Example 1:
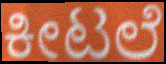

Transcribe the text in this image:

ಕೀಟಲೆ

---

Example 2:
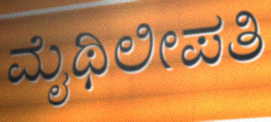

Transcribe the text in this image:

ಮೈಥಿಲೀಪತಿ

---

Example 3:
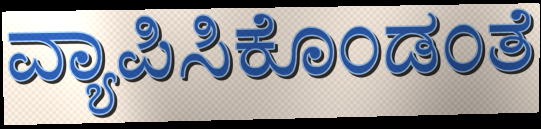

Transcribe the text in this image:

ವ್ಯಾಪಿಸಿಕೊಂಡಂತೆ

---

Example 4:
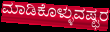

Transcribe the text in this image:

ಮಾಡಿಕೊಳ್ಳುವಷ್ಟರ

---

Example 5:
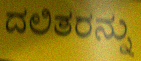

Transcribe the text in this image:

ದಲಿತರನ್ನು